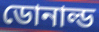
ডোনাল্ড